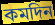
কমদিন